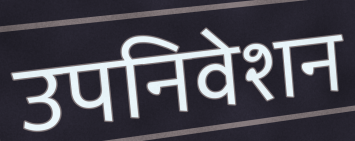
उपनिवेशन